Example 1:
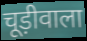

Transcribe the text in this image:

चूड़ीवाला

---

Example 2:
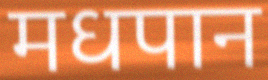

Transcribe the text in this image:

मधपान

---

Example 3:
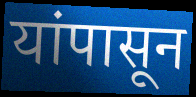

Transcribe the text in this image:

यांपासून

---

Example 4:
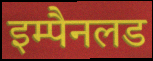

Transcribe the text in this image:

इम्पैनलड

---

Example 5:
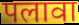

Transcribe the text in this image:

पलावा